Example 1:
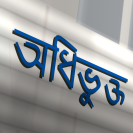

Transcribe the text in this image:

অধিভুক্ত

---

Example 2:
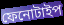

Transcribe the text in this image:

ফেনোটাইপ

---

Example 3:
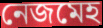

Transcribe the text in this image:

নেজমেহ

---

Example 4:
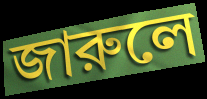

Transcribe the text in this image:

জারুলে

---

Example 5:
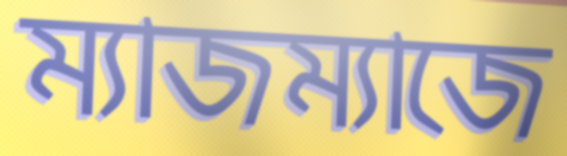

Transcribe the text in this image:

ম্যাজম্যাজে